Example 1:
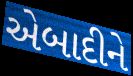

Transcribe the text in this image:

એબાદીને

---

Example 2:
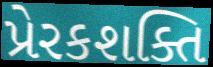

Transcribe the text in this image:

પ્રેરકશક્તિ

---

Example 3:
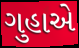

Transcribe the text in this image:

ગુહાએ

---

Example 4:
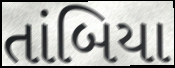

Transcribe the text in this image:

તાંબિયા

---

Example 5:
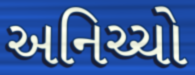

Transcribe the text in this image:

અનિચ્ચો